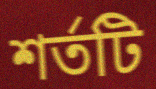
শর্তটি